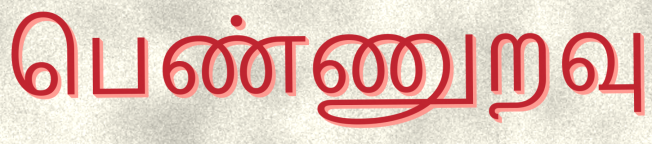
பெண்ணுறவு